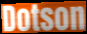
Dotson